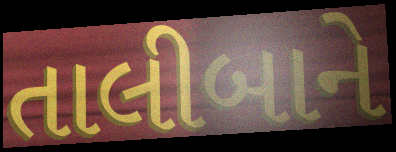
તાલીબાને